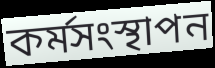
কৰ্মসংস্থাপন